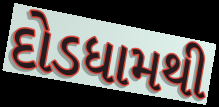
દોડધામથી